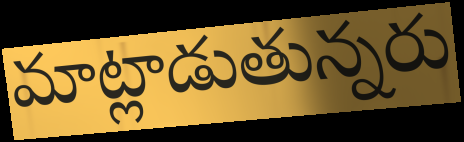
మాట్లాడుతున్నరు